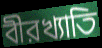
বীরখ্যাতি